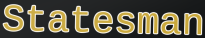
Statesman